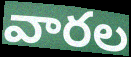
వారల